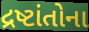
દ્રષ્ટાંતોના